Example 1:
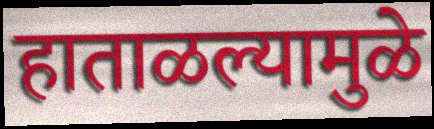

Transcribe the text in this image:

हाताळल्यामुळे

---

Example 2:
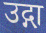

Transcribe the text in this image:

उद्गा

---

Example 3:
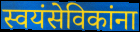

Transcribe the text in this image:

स्वयंसेविकांना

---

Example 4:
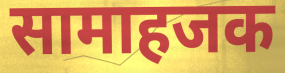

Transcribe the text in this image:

सामाहजक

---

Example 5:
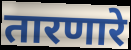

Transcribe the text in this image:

तारणारे